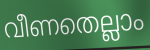
വീണതെല്ലാം